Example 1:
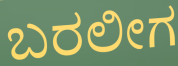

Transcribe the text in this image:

ಬರಲೀಗ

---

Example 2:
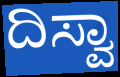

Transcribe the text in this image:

ದಿಸ್ವಾ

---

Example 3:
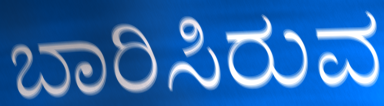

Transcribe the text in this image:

ಬಾರಿಸಿರುವ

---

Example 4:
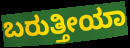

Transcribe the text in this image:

ಬರುತ್ತೀಯಾ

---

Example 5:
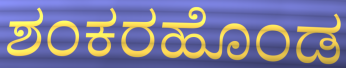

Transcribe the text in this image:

ಶಂಕರಹೊಂಡ